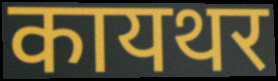
कायथर